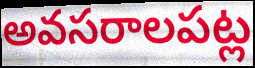
అవసరాలపట్ల